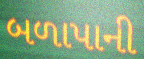
બળાપાની